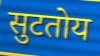
सुटतोय